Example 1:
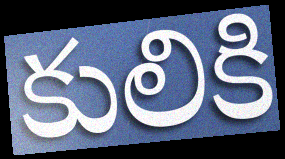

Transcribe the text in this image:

కులికి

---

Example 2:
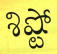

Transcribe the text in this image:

శిష్టో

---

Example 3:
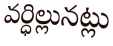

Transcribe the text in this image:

వర్ధిల్లునట్లు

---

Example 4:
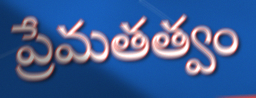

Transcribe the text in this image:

ప్రేమతత్వం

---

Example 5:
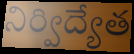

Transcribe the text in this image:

నిర్విద్యేత